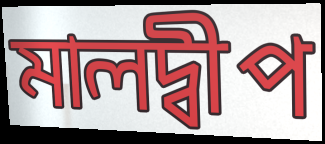
মালদ্বীপ